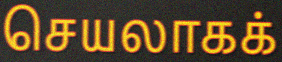
செயலாகக்